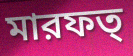
মারফত্